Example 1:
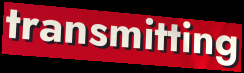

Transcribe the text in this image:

transmitting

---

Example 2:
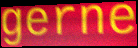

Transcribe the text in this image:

gerne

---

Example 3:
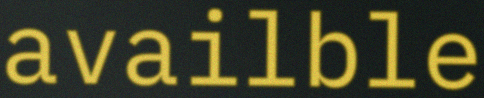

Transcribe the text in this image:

availble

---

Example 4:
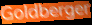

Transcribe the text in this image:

Goldberger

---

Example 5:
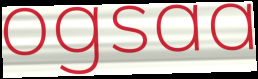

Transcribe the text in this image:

ogsaa